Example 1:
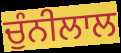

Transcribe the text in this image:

ਚੁੰਨੀਲਾਲ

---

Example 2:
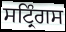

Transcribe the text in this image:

ਸਟ੍ਰਿੰਗਸ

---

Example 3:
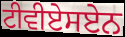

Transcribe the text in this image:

ਟੀਵੀਏਸਏਨ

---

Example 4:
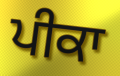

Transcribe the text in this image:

ਪੀਕਾ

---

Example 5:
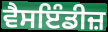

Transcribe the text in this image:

ਵੈਸਇੰਡੀਜ਼